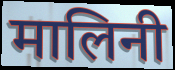
मालिनी